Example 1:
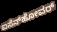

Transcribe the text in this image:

ಐಸೆನ್‍ಹೋವರ್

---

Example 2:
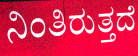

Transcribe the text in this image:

ನಿಂತಿರುತ್ತದೆ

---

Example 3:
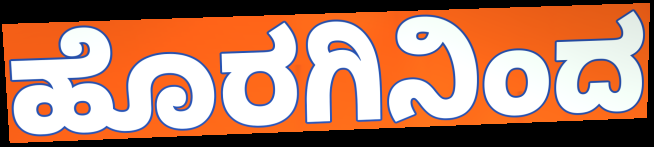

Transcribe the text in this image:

ಹೊರಗಿನಿಂದ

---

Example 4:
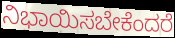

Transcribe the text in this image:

ನಿಭಾಯಿಸಬೇಕೆಂದರೆ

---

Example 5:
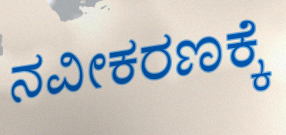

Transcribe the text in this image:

ನವೀಕರಣಕ್ಕೆ